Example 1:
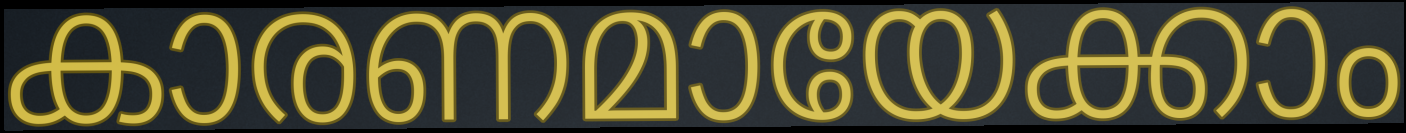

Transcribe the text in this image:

കാരണമായേക്കാം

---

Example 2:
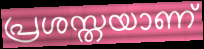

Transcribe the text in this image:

പ്രശസ്തയാണ്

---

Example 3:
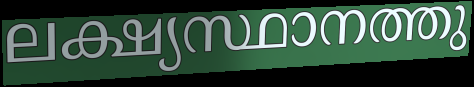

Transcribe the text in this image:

ലക്ഷ്യസ്ഥാനത്തു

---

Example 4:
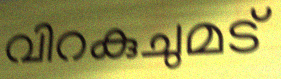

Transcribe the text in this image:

വിറകുചുമട്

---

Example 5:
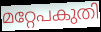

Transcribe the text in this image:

മറ്റേപകുതി